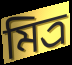
মিত্ৰ